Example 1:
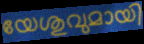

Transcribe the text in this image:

യേശുവുമായി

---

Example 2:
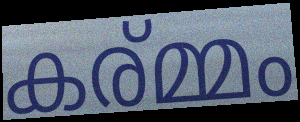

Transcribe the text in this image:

കര്മ്മം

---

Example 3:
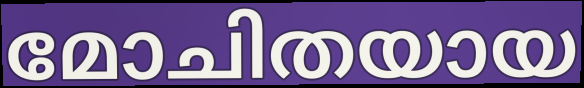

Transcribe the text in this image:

മോചിതയായ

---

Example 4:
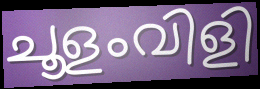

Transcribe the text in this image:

ചൂളംവിളി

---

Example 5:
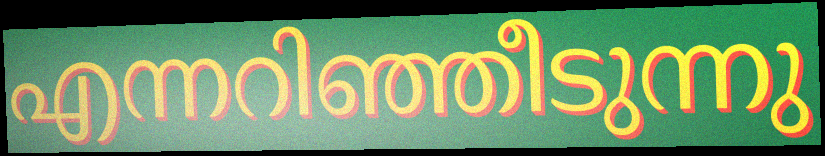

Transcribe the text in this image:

എന്നറിഞ്ഞീടുന്നു